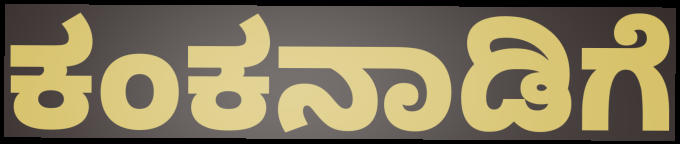
ಕಂಕನಾಡಿಗೆ